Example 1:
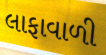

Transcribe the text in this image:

લાફાવાળી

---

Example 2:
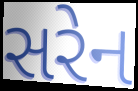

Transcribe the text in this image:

સરેન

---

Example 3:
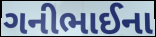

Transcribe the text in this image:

ગનીભાઈના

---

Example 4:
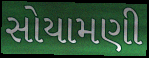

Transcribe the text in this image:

સોયામણી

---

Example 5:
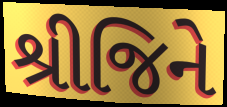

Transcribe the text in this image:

શ્રીજિને